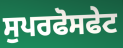
ਸੁਪਰਫੋਸਫੇਟ